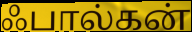
ஃபால்கன்